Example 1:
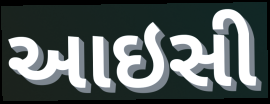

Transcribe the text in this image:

આઇસી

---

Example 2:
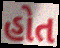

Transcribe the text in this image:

હોત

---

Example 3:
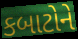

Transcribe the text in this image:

કબાટોને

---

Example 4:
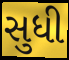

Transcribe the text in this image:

સુધી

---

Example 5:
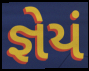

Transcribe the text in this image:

જ્ઞેયં